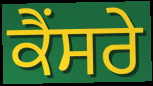
ਕੈਂਸਰੇ